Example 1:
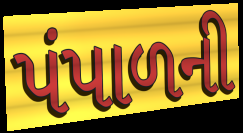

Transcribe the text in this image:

પંપાળની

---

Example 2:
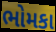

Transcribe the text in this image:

ભોમકા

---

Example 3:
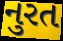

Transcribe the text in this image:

નુરત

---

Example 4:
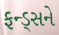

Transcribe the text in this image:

ફન્ડ્સને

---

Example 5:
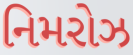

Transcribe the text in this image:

નિમરોઝ